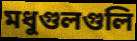
মধুগুলগুলি